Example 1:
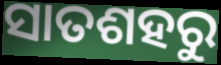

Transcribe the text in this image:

ସାତଶହରୁ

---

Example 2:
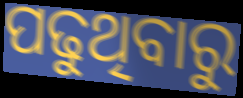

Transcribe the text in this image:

ପଢୁଥିବାରୁ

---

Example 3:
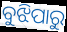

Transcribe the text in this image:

ବୁଝିପାରୁ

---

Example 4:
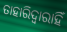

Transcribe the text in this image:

ତାହାରିଦ୍ୱାରାହିଁ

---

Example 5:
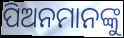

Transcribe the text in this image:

ପିଅନମାନଙ୍କୁ